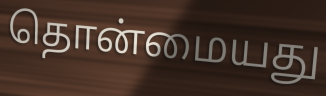
தொன்மையது